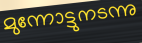
മുന്നോട്ടുനടന്നു